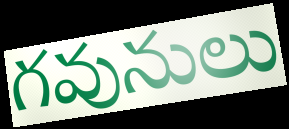
గవునులు